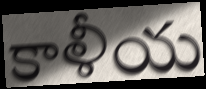
కాళీయ